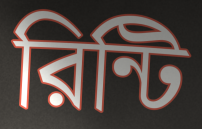
রিন্টি